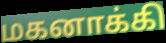
மகனாக்கி